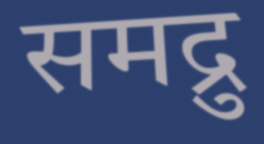
समद्रु